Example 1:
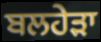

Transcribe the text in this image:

ਬਲਹੇੜਾ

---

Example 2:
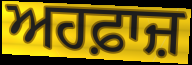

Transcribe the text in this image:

ਅਹਫ਼ਾਜ਼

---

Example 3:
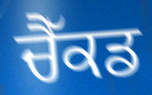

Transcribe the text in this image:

ਚੈੱਕਡ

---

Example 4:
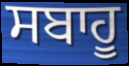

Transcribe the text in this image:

ਸਬਾਹੂ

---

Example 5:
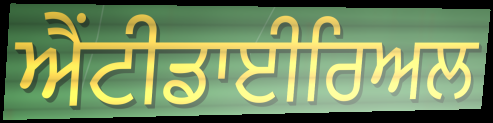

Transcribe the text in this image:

ਐਂਟੀਡਾਈਰਿਅਲ